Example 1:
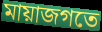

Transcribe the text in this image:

মায়াজগতে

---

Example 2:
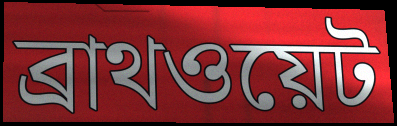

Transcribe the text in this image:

ব্রাথওয়েট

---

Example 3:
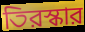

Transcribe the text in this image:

তিরস্কার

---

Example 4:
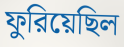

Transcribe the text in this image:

ফুরিয়েছিল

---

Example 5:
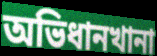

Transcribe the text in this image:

অভিধানখানা